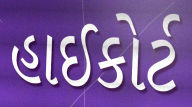
હાઈકોર્ટ